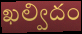
ఖల్విదం